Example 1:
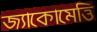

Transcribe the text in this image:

জ্যাকোমেত্তি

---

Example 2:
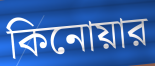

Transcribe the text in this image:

কিনোয়ার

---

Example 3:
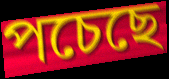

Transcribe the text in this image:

পচেছে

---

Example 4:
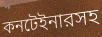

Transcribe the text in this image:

কনটেইনারসহ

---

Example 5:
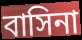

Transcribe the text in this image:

বাসিনা